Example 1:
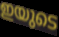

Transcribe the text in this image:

ഇയുടെ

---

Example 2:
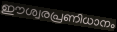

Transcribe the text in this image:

ഈശ്വരപ്രണിധാനം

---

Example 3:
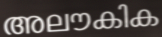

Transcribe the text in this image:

അലൗകിക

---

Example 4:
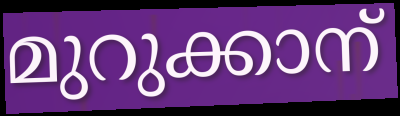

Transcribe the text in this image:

മുറുക്കാന്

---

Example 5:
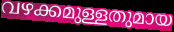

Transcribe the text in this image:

വഴക്കമുള്ളതുമായ